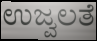
ಉಜ್ವಲತೆ